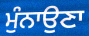
ਮੁੰਨਾਉਣਾ